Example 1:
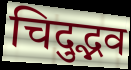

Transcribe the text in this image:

चिदुद्भव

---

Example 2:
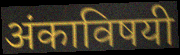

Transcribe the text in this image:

अंकाविषयी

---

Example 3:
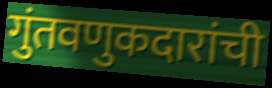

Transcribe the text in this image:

गुंतवणुकदारांची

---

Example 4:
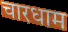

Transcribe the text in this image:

चारधाम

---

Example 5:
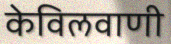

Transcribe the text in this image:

केविलवाणी